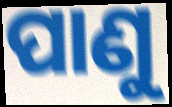
ପାଣୁ